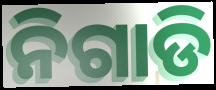
ନିଗାଡି